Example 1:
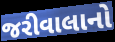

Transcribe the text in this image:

જરીવાલાનો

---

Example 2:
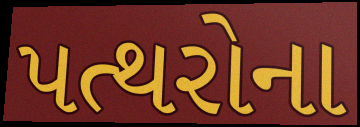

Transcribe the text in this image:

પત્થરોના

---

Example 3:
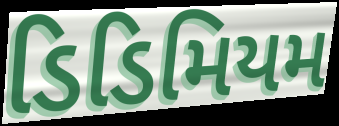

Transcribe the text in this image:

ડિડિમિયમ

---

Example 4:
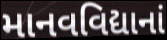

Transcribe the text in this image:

માનવવિદ્યાનાં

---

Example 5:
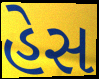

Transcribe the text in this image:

હેસ